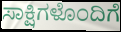
ಸಾಕ್ಷಿಗಳೊಂದಿಗೆ